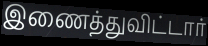
இணைத்துவிட்டார்